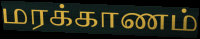
மரக்காணம்